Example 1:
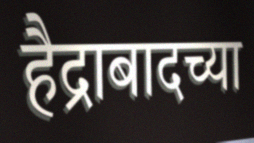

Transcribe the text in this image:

हैद्राबादच्या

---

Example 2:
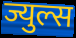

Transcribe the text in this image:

ज्युल्स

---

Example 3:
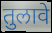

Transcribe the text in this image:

तुलावे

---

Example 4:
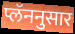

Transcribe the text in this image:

प्लॅननुसार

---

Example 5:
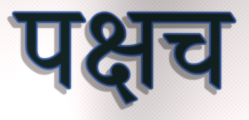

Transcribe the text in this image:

पक्षच